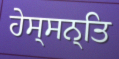
ਹੇਸ੍ਸਨ੍ਤਿ